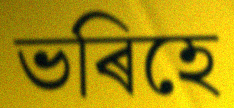
ভৰিহে